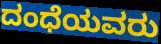
ದಂಧೆಯವರು